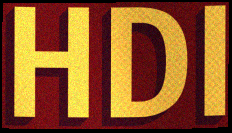
HDI